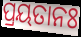
ପ୍ରୟତାନଃ